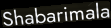
Shabarimala